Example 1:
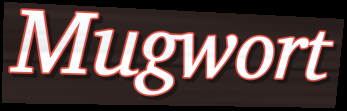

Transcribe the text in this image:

Mugwort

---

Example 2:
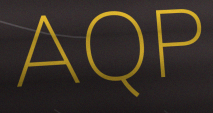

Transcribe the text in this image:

AQP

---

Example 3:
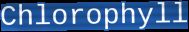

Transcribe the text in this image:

Chlorophyll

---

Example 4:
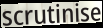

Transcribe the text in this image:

scrutinise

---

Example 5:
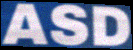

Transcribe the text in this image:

ASD